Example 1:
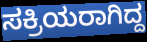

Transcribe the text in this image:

ಸಕ್ರಿಯರಾಗಿದ್ದ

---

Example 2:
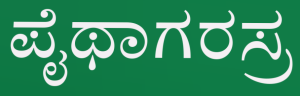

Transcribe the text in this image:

ಪೈಥಾಗರಸ್ರ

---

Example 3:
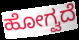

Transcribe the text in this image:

ಹೋಗ್ವದೆ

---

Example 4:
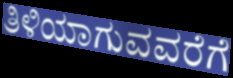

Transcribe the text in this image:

ತಿಳಿಯಾಗುವವರೆಗೆ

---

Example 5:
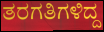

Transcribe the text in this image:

ತರಗತಿಗಳಿದ್ದ